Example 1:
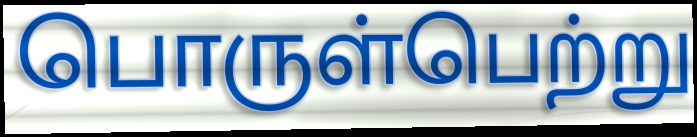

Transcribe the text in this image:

பொருள்பெற்று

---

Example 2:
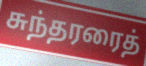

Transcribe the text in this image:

சுந்தரரைத்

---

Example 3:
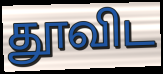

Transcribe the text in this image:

தூவிட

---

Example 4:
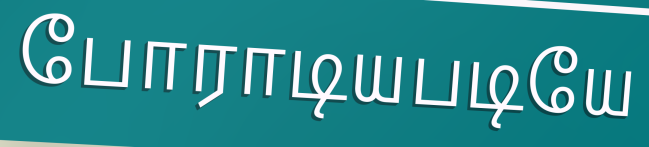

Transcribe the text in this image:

போராடியபடியே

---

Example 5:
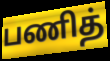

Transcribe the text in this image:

பணித்